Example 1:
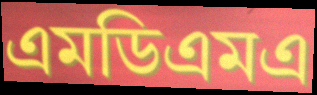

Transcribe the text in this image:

এমডিএমএ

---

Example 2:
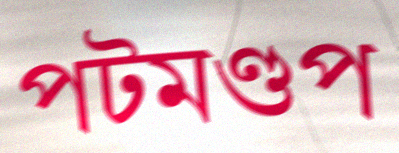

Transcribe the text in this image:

পটমণ্ডপ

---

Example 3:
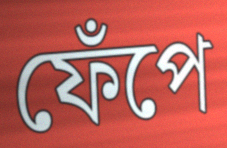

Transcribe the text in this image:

ফেঁপে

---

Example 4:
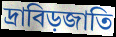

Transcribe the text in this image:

দ্রাবিড়জাতি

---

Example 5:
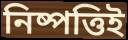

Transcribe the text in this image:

নিষ্পত্তিই